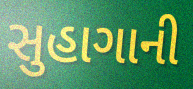
સુહાગાની